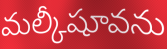
మల్కీషూవను